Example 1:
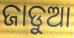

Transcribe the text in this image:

ଜାଡୁଆ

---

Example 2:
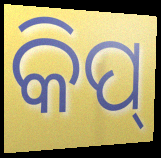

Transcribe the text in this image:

କିପ୍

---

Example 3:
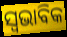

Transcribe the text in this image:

ସ୍ଵଭାବିକ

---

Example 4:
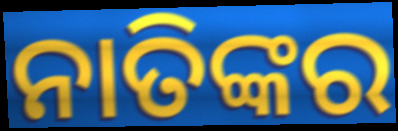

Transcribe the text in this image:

ନାତିଙ୍କର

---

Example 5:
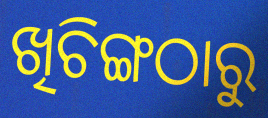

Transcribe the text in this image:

ଖିଚିଙ୍ଗଠାରୁ